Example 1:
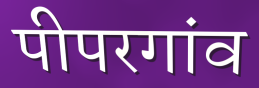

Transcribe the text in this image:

पीपरगांव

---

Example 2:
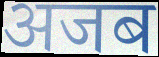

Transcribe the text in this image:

अजब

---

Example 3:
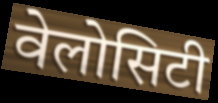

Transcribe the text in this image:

वेलोसिटी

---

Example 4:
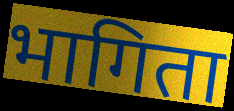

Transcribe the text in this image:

भागिता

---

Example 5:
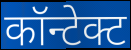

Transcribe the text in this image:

कॉन्टेक्ट